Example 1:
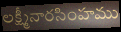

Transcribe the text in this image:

లక్ష్మీనారసింహము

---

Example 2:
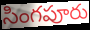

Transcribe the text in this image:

సింగపూరు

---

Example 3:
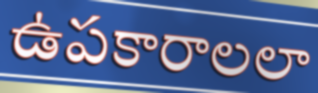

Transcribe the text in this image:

ఉపకారాలలా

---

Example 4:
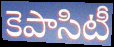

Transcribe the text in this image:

కెపాసిటీ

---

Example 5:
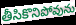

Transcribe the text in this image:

తీసికొనిపోవును